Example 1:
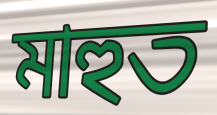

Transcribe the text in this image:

মাহুত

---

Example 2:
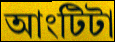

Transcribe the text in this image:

আংটিটা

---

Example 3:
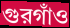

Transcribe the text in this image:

গুরগাঁও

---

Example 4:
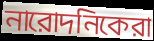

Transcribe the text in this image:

নারোদনিকেরা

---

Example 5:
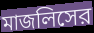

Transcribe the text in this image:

মাজলিসের